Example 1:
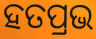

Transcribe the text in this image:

ହତପ୍ରଭ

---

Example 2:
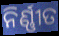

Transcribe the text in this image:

ନିର୍ଣ୍ଣୀତ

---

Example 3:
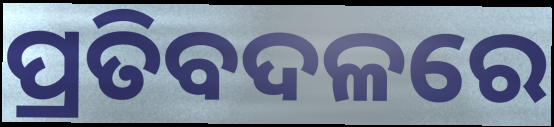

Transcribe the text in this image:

ପ୍ରତିବଦଳରେ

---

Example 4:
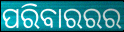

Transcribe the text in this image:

ପରିବାରରର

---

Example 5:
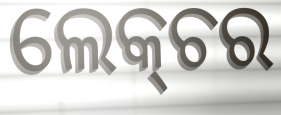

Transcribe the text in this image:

ଲେକ୍‍ଚର